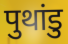
पुथांडु